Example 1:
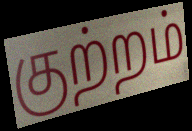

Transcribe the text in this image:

குற்றம்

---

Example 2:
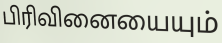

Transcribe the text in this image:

பிரிவினையையும்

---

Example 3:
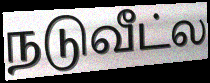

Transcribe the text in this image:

நடுவீட்ல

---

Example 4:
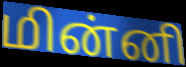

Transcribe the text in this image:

மின்னி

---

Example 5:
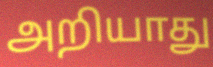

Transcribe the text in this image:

அறியாது